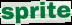
sprite